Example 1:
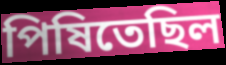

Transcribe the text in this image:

পিষিতেছিল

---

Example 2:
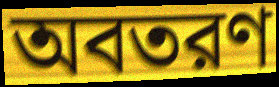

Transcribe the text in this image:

অবতরণ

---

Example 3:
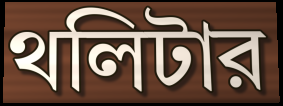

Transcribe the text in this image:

থলিটার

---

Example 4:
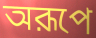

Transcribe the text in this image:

অরূপে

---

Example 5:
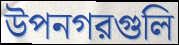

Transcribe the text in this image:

উপনগরগুলি